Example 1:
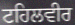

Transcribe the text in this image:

ਟਹਿਲਵੀਰ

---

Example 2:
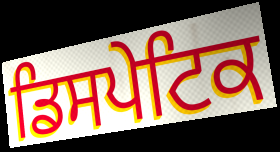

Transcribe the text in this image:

ਡਿਸਪੇਟਿਕ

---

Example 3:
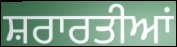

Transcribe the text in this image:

ਸ਼ਰਾਰਤੀਆਂ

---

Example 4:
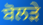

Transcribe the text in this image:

ਬੋਲੜੇ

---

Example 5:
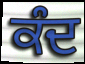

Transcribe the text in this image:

ਕੰਦ